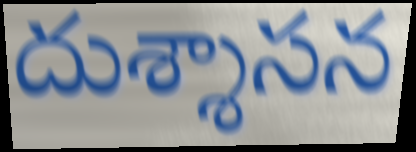
దుశ్శాసన